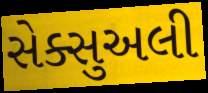
સેક્સુઅલી